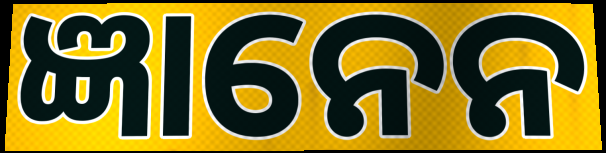
ଜ୍ଞାନେନ